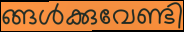
ങ്ങൾക്കുവേണ്ടി